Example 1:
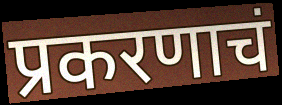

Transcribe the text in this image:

प्रकरणाचं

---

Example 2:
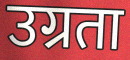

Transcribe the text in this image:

उग्रता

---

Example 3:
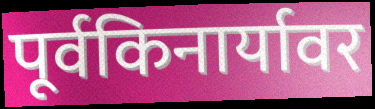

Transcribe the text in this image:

पूर्वकिनार्यावर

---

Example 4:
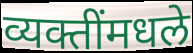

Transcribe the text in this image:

व्यक्तींमधले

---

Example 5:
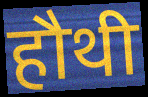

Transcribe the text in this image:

हौथी